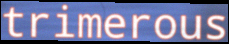
trimerous